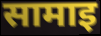
सामाइ